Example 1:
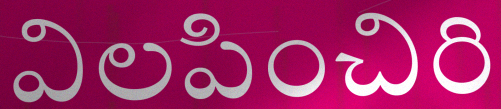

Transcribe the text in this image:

విలపించిరి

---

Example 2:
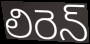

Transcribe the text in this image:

లిరెన్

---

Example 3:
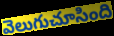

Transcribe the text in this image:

వెలుగుచూసింది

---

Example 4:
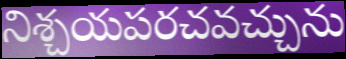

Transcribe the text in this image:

నిశ్చయపరచవచ్చును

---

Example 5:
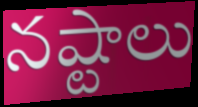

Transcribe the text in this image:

నష్టాలు